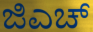
ಜಿಎಚ್